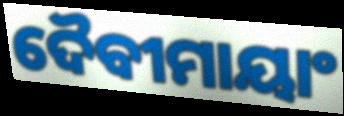
ଦୈବୀମାୟାଂ